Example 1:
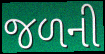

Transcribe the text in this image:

જળની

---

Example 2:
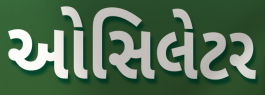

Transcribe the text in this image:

ઓસિલેટર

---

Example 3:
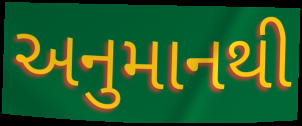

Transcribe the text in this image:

અનુમાનથી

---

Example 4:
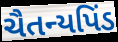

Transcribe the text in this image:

ચૈતન્યપિંડ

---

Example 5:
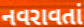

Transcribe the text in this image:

નવરાવતાં